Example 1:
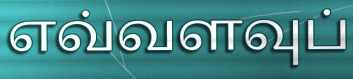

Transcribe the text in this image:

எவ்வளவுப்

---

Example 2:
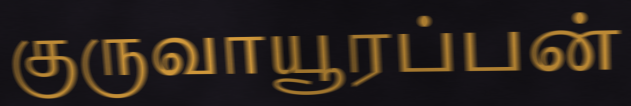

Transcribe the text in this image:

குருவாயூரப்பன்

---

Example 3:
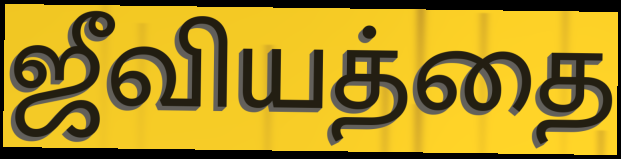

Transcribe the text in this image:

ஜீவியத்தை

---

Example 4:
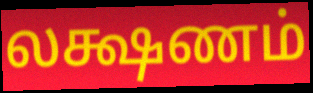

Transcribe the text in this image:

லக்ஷணம்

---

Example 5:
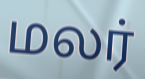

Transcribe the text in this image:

மலர்